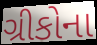
ગ્રીકોના